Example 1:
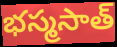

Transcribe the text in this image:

భస్మసాత్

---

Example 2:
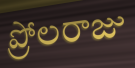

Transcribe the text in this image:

ప్రోలరాజు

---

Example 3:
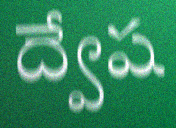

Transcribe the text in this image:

ద్వేష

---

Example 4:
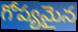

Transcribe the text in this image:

గోప్యమైన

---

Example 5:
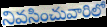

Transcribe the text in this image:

నివసించువారిలో